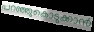
പറഞ്ഞുകൊടുക്കാൻ